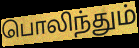
பொலிந்தும்